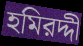
হমিরদ্দী